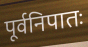
पूर्वनिपातः